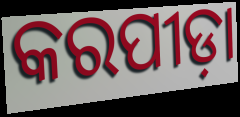
କରପୀଡ଼ା